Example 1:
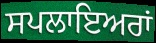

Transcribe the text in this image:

ਸਪਲਾਇਅਰਾਂ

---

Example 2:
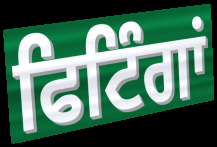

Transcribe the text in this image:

ਫਿਟਿੰਗਾਂ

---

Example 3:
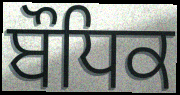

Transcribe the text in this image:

ਬੌਧਿਕ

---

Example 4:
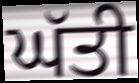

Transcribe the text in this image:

ਘੱਤੀ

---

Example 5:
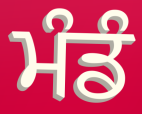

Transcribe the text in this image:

ਮੰਡੰ